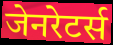
जेनरेटर्स